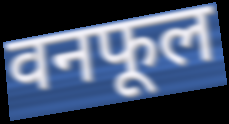
वनफूल